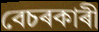
বেচৰকাৰী